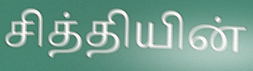
சித்தியின்